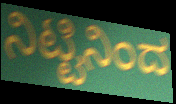
ನಿಟ್ಟಿನಿಂದ